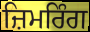
ਜ਼ਿਮਰਿੰਗ